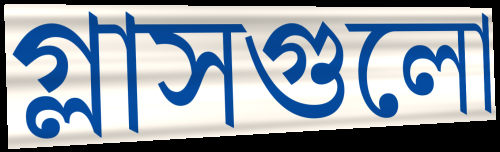
গ্লাসগুলো